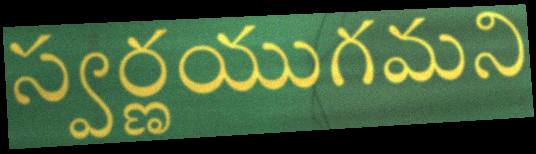
స్వర్ణయుగమని